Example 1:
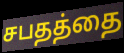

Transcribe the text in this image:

சபதத்தை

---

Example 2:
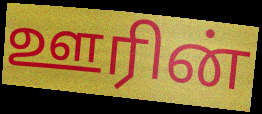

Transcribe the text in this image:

ஊரின்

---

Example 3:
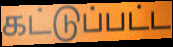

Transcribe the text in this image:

கட்டுப்பட்ட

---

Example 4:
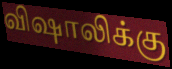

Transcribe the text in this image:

விஷாலிக்கு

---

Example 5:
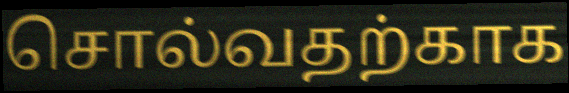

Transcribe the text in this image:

சொல்வதற்காக